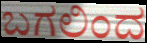
ಬಗಲಿಂದ